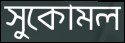
সুকোমল